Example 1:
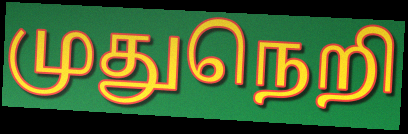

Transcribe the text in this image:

முதுநெறி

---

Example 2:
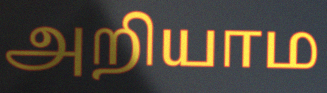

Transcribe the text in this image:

அறியாம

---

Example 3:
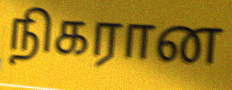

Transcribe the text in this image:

நிகரான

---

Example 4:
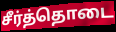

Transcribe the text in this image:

சீர்த்தொடை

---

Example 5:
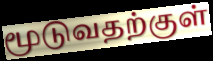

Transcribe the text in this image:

மூடுவதற்குள்